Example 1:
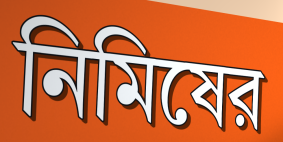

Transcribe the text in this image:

নিমিষের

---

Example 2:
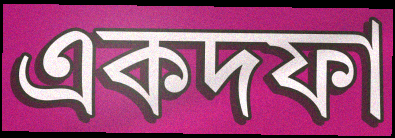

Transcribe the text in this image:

একদফা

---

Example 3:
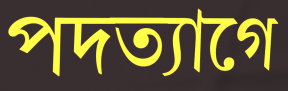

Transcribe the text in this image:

পদত্যাগে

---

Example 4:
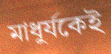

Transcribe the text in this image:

মাধুর্যকেই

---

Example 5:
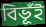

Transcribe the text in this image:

বিভূঁই